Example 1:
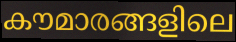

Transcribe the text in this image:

കൗമാരങ്ങളിലെ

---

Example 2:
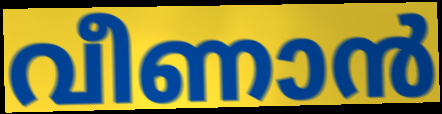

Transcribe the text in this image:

വീണാൻ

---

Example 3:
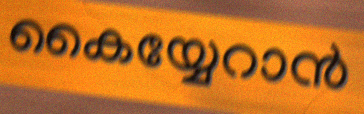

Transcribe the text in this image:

കൈയ്യേറാൻ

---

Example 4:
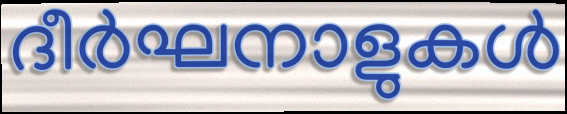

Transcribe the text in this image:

ദീർഘനാളുകൾ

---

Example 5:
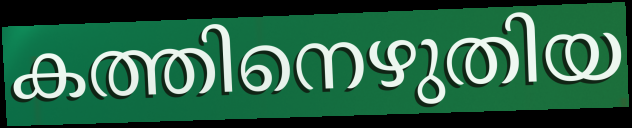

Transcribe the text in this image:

കത്തിനെഴുതിയ